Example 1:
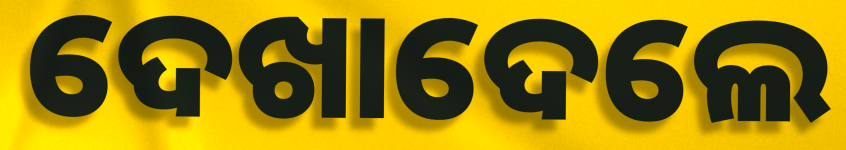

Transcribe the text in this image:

ଦେଖାଦେଲେ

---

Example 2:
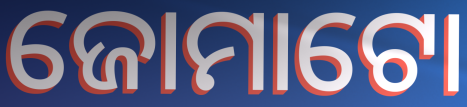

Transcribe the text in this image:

ଜୋମାଟୋ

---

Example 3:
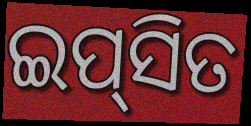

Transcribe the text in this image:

ଇପ୍‌ସିତ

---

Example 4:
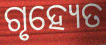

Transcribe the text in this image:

ଗୃହ୍ଯେତ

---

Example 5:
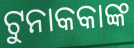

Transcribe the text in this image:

ଟୁନାକକାଙ୍କ